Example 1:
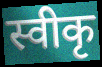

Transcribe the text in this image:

स्वीकृ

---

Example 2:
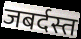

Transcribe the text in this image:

जबर्दस्त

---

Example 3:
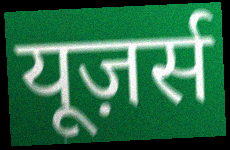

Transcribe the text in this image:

यूज़र्स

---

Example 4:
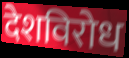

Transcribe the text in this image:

देशविरोध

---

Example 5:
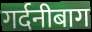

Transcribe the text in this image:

गर्दनीबाग